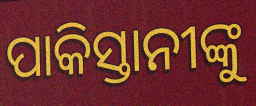
ପାକିସ୍ତାନୀଙ୍କୁ